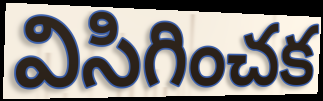
విసిగించక